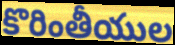
కొరింతీయుల